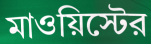
মাওয়িস্টের